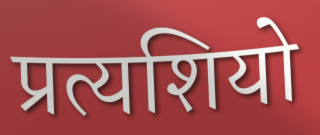
प्रत्यशियो